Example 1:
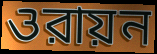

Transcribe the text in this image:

ওরায়ন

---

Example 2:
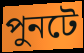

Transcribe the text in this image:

পুনটে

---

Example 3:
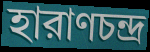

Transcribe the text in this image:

হারাণচন্দ্র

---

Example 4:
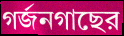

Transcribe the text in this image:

গর্জনগাছের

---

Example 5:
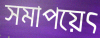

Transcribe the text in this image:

সমাপয়েৎ